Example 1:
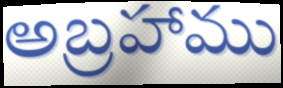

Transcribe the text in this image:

అబ్రహాము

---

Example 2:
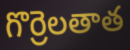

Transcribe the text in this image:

గొర్రెలతాత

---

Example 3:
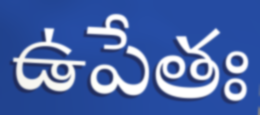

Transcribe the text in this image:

ఉపేతః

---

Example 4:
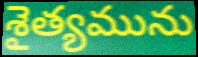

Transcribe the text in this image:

శైత్యమును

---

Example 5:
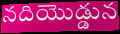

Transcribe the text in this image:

నదియొడ్డున